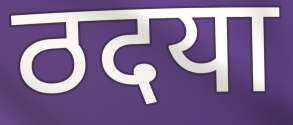
ठदया